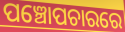
ପଞ୍ଚୋପଚାରରେ